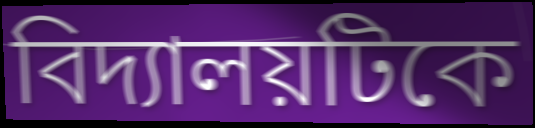
বিদ্যালয়টিকে